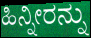
ಹಿನ್ನೀರನ್ನು